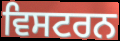
ਵਿਸਟਰਨ